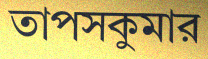
তাপসকুমার